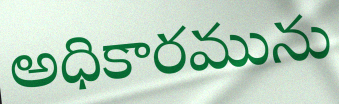
అధికారమును